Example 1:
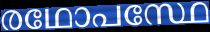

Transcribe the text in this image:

രഥോപസ്ഥേ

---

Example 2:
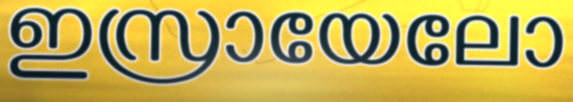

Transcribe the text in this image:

ഇസ്രായേലോ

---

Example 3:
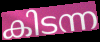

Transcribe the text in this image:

കിടന്ന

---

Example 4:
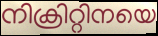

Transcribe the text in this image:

നിക്രിറ്റിനയെ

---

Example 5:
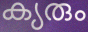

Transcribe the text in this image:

ക്യരും